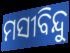
ମସୀବିନ୍ଦୁ